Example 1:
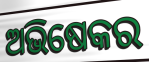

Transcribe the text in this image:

ଅଭିଷେକର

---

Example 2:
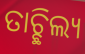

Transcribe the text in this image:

ତାଚ୍ଛିଲ୍ୟ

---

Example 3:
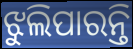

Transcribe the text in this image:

ଝୁଲିପାରନ୍ତି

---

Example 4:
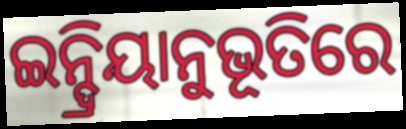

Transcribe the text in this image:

ଇନ୍ଦ୍ରିୟାନୁଭୂତିରେ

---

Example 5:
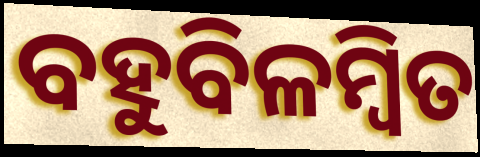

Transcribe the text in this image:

ବହୁବିଳମ୍ବିତ